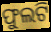
ଫୁଲଟି